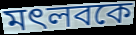
মৎলবকে